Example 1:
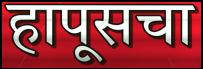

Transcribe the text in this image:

हापूसचा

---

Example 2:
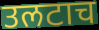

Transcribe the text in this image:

उलटाच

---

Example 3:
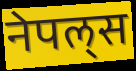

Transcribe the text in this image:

नेपल्स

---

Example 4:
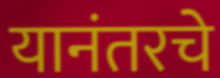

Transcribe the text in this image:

यानंतरचे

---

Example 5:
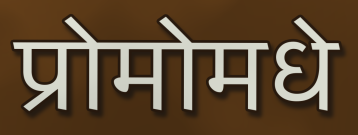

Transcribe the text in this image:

प्रोमोमधे